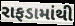
રાફડામાંથી